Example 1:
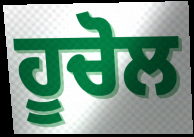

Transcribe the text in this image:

ਹੂਚੋਲ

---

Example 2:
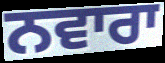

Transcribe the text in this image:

ਨਵਾਰਾ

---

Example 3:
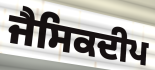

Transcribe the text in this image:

ਜੈਸਿਕਦੀਪ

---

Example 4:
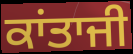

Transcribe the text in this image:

ਕਾਂਤਾਜੀ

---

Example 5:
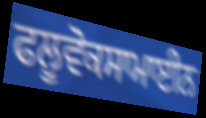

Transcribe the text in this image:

ਫਲੂਵੋਕਸਾਮਾਈਨ